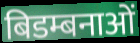
बिडम्बनाओं